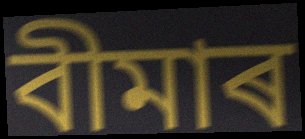
বীমাৰ